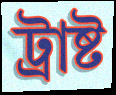
ট্ৰাষ্ট